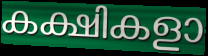
കക്ഷികളാ